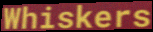
Whiskers